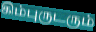
கிம்புருடரும்